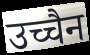
उच्चैन